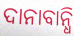
ଦାନାବାନ୍ଧି